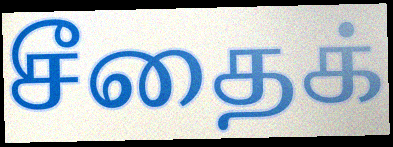
சீதைக்